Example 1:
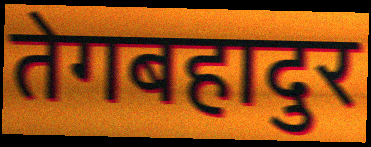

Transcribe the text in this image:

तेगबहादुर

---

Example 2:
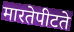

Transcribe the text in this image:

मारतेपीटते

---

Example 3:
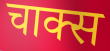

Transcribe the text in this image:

चाक्स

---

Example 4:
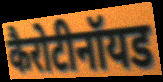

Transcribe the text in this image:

कैरोटीनॉयड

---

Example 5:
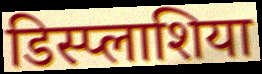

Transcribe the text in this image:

डिस्प्लाशिया